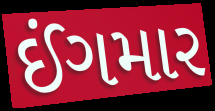
ઈંગમાર